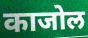
काजोल